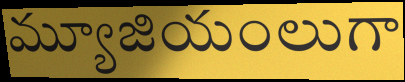
మ్యూజియంలుగా